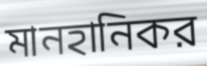
মানহানিকর